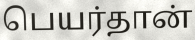
பெயர்தான்